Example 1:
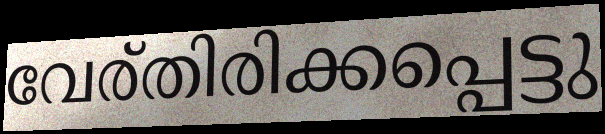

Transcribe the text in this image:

വേര്തിരിക്കപ്പെട്ടു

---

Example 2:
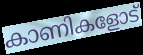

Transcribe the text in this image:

കാണികളോട്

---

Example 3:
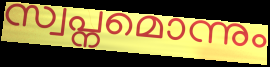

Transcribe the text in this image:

സ്വപ്നമൊന്നും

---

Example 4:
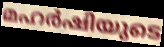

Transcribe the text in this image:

മഹർഷിയുടെ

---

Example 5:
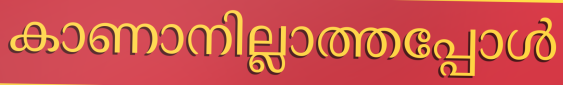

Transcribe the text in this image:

കാണാനില്ലാത്തപ്പോൾ